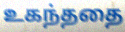
உகந்ததை